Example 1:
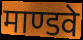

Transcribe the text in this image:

माण्डवे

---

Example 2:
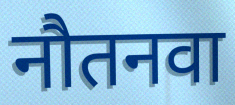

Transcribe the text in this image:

नौतनवा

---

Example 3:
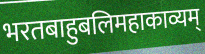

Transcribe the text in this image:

भरतबाहुबलिमहाकाव्यम्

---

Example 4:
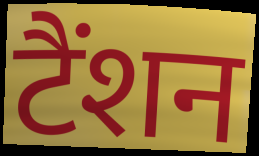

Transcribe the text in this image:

टैंशन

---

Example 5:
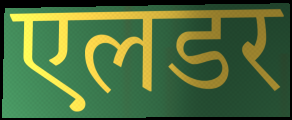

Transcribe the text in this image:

एलडर